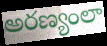
అరణ్యంలా